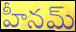
హీనమ్